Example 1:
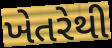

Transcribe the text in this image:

ખેતરેથી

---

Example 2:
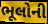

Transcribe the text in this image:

ભૂલોની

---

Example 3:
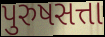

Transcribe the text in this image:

પુરુષસત્તા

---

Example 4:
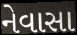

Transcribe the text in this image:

નેવાસા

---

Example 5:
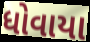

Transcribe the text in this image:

ધોવાયા